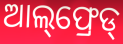
ଆଲ୍‌ଫ୍ରେଡ୍